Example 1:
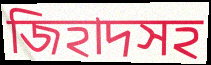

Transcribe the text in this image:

জিহাদসহ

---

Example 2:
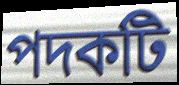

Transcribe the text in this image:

পদকটি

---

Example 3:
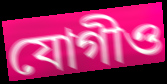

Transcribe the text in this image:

যোগীও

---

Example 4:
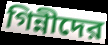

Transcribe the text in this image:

গিন্নীদের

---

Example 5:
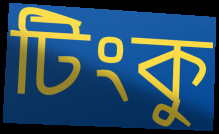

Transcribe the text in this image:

টিংকু